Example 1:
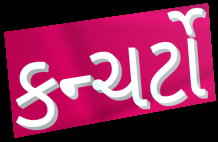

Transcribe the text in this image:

કન્ચર્ટો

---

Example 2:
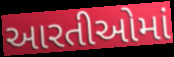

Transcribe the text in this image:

આરતીઓમાં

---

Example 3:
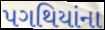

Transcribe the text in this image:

પગથિયાંના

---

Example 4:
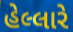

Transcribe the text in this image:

હેલ્લારે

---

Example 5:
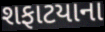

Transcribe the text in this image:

શફાટયાના